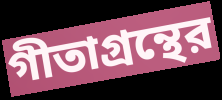
গীতাগ্রন্থের